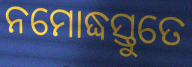
ନମୋଦ୍ଧସ୍ତୁତେ